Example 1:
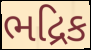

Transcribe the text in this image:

ભદ્રિક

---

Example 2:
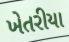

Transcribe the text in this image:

ખેતરીયા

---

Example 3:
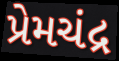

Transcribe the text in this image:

પ્રેમચંદ્ર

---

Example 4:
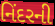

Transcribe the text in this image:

નિંદરની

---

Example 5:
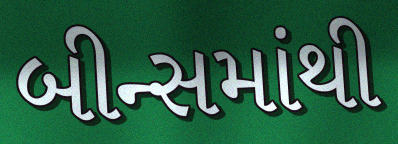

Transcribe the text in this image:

બીન્સમાંથી